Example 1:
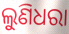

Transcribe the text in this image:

ଲୁଣିଧରା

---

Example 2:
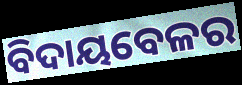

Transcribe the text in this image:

ବିଦାୟବେଳର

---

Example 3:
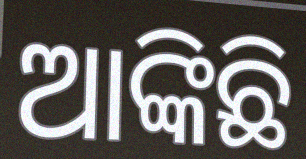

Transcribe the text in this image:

ଆଙ୍କିଛି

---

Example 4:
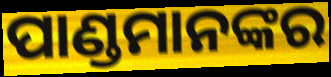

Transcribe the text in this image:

ପାଣ୍ଡମାନଙ୍କର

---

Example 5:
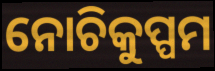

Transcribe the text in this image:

ନୋଚିକୁପ୍ପମ